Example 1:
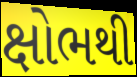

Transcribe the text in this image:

ક્ષોભથી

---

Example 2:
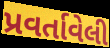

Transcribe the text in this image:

પ્રવર્તાવેલી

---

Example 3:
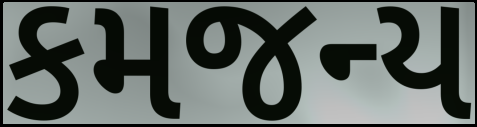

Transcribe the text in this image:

કમજન્ય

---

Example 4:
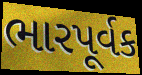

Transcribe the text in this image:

ભારપૂર્વક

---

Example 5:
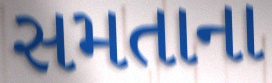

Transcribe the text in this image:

સમતાના